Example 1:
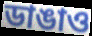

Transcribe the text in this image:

ডাঙাও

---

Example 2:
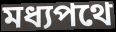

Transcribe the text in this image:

মধ্যপথে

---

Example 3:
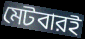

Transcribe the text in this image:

মেটবারই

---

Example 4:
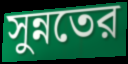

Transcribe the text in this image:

সুন্নতের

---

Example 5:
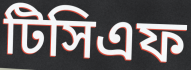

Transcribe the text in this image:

টিসিএফ